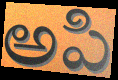
అపి